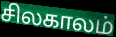
சிலகாலம்